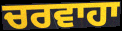
ਚਰਵਾਹਾ